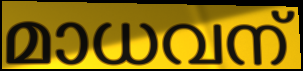
മാധവന്